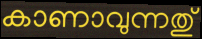
കാണാവുന്നതു്